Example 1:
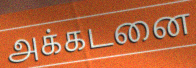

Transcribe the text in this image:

அக்கடனை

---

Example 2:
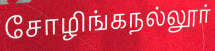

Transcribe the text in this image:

சோழிங்கநல்லூர்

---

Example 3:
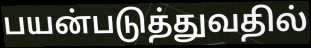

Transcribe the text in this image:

பயன்படுத்துவதில்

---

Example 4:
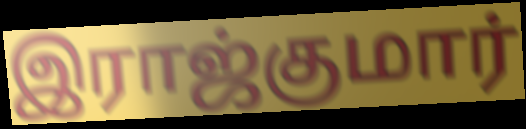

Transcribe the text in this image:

இராஜ்குமார்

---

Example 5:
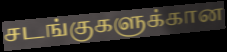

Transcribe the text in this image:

சடங்குகளுக்கான